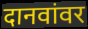
दानवांवर